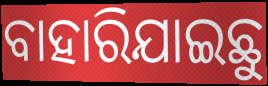
ବାହାରିଯାଇଛୁ